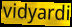
vidyardi